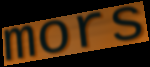
mors